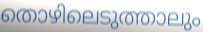
തൊഴിലെടുത്താലും